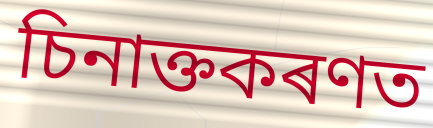
চিনাক্তকৰণত